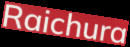
Raichura